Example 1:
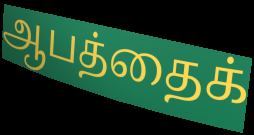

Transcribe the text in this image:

ஆபத்தைக்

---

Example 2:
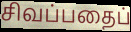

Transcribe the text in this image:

சிவப்பதைப்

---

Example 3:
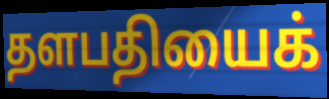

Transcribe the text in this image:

தளபதியைக்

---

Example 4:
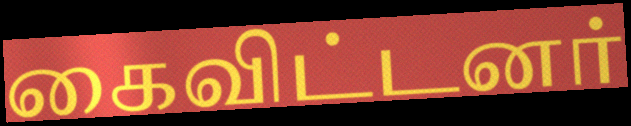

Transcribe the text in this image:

கைவிட்டனர்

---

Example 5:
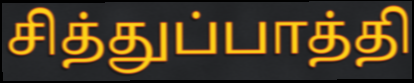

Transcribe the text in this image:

சித்துப்பாத்தி